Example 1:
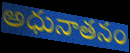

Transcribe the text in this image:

అధునాతనం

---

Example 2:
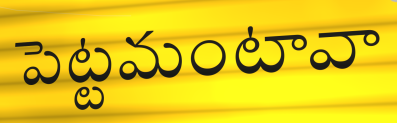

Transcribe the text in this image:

పెట్టమంటావా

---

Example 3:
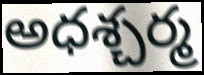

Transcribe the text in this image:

అధశ్చర్మ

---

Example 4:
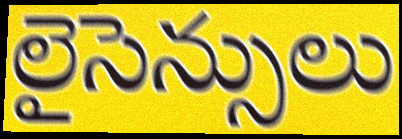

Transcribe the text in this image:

లైసెన్సులు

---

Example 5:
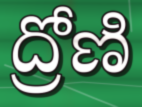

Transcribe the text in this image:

ద్రోణి